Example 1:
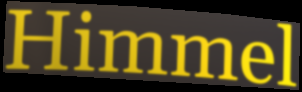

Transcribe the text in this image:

Himmel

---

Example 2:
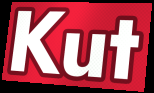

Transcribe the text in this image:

Kut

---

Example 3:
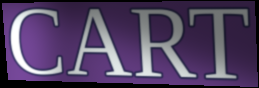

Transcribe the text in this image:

CART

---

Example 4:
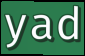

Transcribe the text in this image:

yad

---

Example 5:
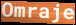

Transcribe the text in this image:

Omraje